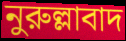
নুরুল্লাবাদ